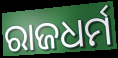
ରାଜଧର୍ମ